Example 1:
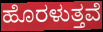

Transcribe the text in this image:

ಹೊರಳುತ್ತವೆ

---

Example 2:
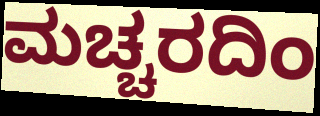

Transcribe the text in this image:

ಮಚ್ಚರದಿಂ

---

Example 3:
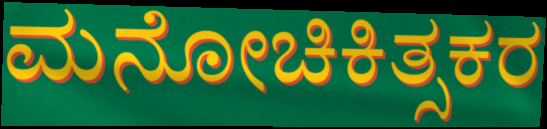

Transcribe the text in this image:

ಮನೋಚಿಕಿತ್ಸಕರ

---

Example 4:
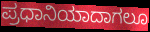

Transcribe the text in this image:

ಪ್ರಧಾನಿಯಾದಾಗಲೂ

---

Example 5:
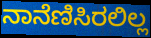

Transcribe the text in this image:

ನಾನೆಣಿಸಿರಲಿಲ್ಲ